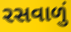
રસવાળું